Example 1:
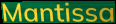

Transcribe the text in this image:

Mantissa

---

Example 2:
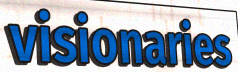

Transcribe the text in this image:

visionaries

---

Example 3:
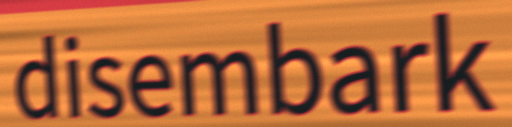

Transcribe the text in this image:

disembark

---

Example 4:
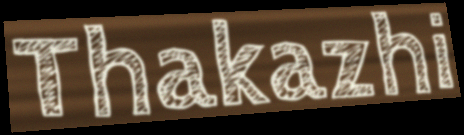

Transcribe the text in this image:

Thakazhi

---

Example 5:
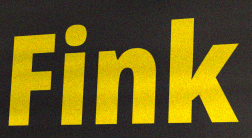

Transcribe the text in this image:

Fink